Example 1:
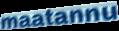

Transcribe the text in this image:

maatannu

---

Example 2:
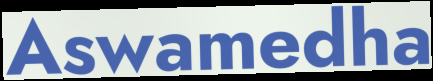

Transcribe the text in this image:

Aswamedha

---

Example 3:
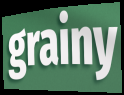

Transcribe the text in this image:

grainy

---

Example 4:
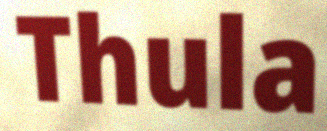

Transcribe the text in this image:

Thula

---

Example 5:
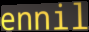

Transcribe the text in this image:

ennil